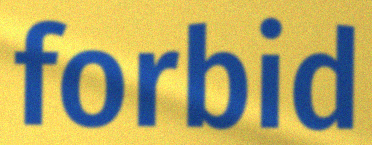
forbid